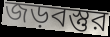
জড়বস্তুর